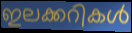
ഇലക്കറികൾ